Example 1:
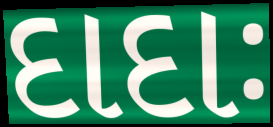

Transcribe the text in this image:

દાદાઃ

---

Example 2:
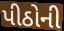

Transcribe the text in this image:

પીઠોની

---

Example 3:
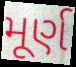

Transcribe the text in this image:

મૂર્ણ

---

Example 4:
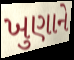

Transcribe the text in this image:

ખુણાને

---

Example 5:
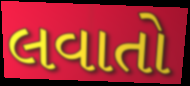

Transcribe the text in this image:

લવાતો